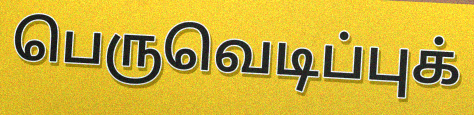
பெருவெடிப்புக்